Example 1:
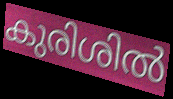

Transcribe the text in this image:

കുരിശിൽ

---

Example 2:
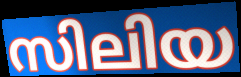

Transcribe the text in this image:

സിലിയ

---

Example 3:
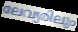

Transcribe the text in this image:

ലേവ്യരിലും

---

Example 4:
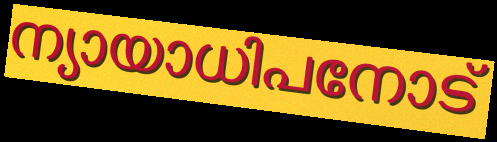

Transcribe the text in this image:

ന്യായാധിപനോട്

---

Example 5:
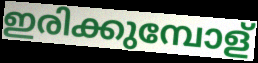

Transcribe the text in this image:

ഇരിക്കുമ്പോള്